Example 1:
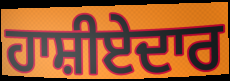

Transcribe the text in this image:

ਹਾਸ਼ੀਏਦਾਰ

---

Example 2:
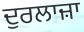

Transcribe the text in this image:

ਦੁਰਲਾਜ਼ਾ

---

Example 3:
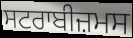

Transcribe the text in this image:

ਸਟਰਾਬੀਜ਼ਮਸ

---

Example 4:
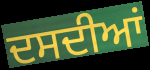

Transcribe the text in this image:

ਦਸਦੀਆਂ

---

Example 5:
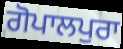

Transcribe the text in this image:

ਗੋਪਾਲਪੁਰਾ